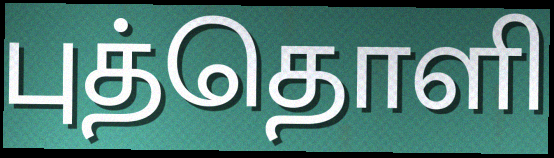
புத்தொளி